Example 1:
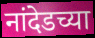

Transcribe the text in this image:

नांदेडच्या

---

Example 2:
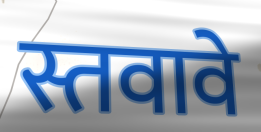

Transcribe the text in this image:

स्तवावे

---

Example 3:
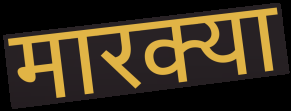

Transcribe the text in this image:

मारक्या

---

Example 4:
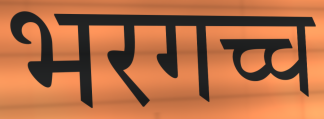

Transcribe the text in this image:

भरगच्च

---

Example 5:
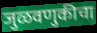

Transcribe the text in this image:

जुळवणुकीचा